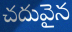
చదువైన